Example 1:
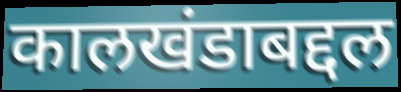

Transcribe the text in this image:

कालखंडाबद्दल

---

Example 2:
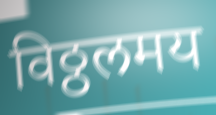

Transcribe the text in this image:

विठ्ठलमय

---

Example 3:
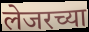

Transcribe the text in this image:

लेजरच्या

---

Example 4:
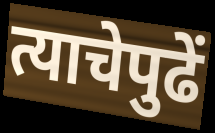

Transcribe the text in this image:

त्याचेपुढें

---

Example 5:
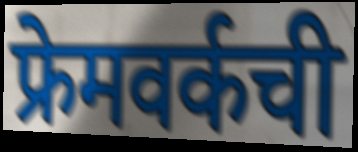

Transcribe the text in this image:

फ्रेमवर्कची